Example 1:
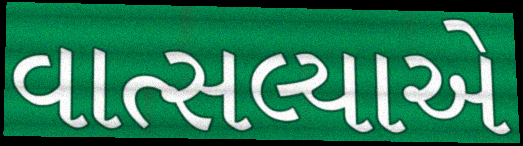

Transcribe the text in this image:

વાત્સલ્યાએ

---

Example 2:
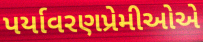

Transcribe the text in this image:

પર્યાવરણપ્રેમીઓએ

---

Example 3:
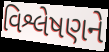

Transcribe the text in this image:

વિશ્લેષણને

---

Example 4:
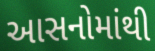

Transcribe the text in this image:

આસનોમાંથી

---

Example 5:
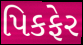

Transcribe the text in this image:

પિકફેર